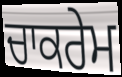
ਚਾਕਰੇਮ